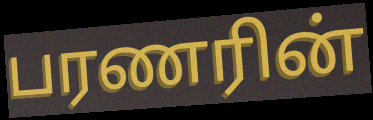
பரணரின்